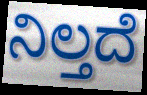
ನಿಲ್ತದೆ